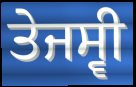
ਤੇਜਸ੍ਵੀ